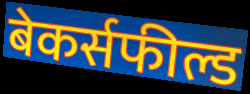
बेकर्सफील्ड